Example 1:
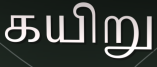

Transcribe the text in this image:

கயிறு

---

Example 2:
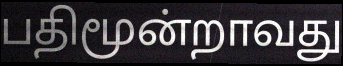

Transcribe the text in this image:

பதிமூன்றாவது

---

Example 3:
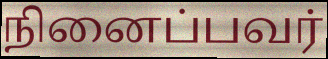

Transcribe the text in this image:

நினைப்பவர்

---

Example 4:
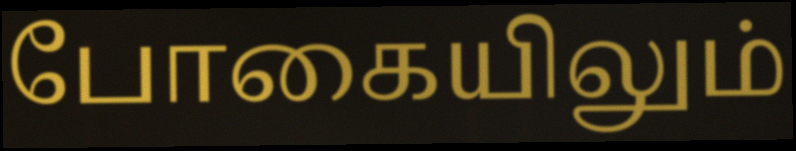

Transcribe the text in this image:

போகையிலும்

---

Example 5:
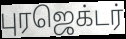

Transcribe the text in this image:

புரஜெக்டர்